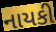
નાયકી